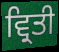
ਵ੍ਰਿਤੀ